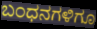
ಬಂಧನಗಳಿಗೂ